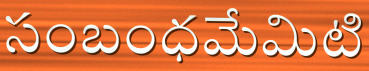
సంబంధమేమిటి